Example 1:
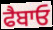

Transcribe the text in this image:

ਫੈਬਾਓ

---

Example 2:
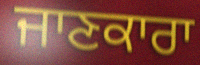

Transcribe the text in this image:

ਜਾਣਕਾਰਾ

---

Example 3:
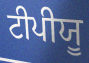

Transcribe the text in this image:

ਟੀਪੀਯੂ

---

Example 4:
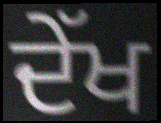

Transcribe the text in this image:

ਦੇੱਖ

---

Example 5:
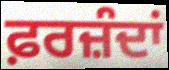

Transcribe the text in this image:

ਫ਼ਰਜ਼ੰਦਾਂ